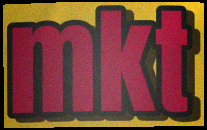
mkt